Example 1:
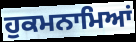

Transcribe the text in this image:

ਹੁਕਮਨਾਮਿਆਂ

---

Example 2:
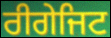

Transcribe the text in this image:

ਰੀਗੇਜਿਟ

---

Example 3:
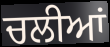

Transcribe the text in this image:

ਚਲੀਆਂ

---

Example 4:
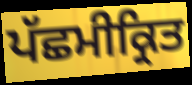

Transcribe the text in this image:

ਪੱਛਮੀਕ੍ਰਿਤ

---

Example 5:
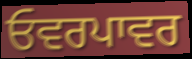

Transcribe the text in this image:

ਓਵਰਪਾਵਰ